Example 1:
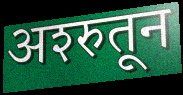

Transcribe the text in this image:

अश्रुतून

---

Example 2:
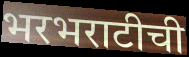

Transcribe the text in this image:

भरभराटीची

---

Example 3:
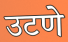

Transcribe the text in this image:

उटणे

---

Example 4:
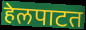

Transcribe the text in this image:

हेलपाटत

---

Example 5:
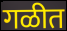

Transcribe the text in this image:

गळीत